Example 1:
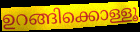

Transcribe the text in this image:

ഉറങ്ങിക്കൊള്ളൂ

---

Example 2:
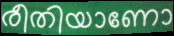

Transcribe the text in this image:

രീതിയാണോ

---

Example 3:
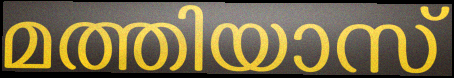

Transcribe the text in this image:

മത്തിയാസ്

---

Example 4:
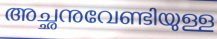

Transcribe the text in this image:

അച്ഛനുവേണ്ടിയുള്ള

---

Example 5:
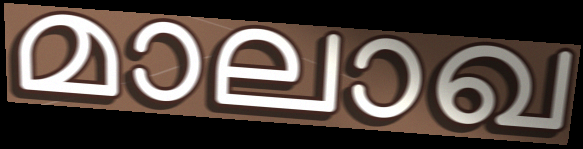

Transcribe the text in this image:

മാലാഖ